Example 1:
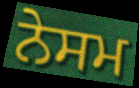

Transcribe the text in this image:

ਨੇਸਮ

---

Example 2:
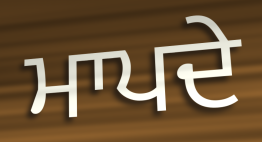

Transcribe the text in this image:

ਮਾਪਦੇ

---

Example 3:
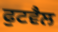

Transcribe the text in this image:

ਫੁਟਵੈਲ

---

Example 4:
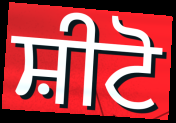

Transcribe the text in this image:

ਸ਼ੀਟੋ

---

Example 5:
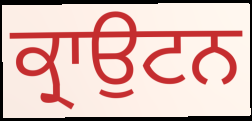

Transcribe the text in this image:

ਕ੍ਰਾਉਟਨ